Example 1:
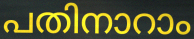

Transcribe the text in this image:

പതിനാറാം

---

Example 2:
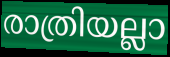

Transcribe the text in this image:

രാത്രിയല്ലാ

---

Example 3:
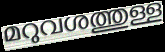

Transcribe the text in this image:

മറുവശത്തുള്ള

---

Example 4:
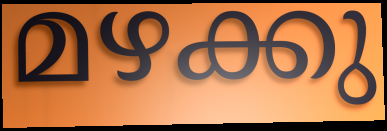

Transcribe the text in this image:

മഴക്കു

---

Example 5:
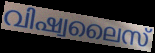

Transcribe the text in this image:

വിഷ്വലൈസ്